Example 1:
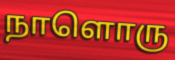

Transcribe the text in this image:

நாளொரு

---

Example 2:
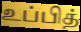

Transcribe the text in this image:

உப்பித்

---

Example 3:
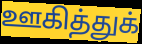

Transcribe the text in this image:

ஊகித்துக்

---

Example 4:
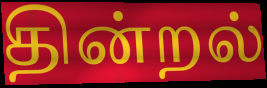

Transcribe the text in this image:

தின்றல்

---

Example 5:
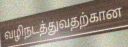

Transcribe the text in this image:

வழிநடத்துவதற்கான